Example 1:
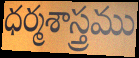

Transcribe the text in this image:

ధర్మశాస్త్రము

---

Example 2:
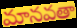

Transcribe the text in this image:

మానవతా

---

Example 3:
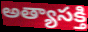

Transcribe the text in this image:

అత్యాసక్తి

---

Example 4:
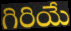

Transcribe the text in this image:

గిరియే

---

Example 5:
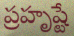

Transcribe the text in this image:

ప్రహృష్టే